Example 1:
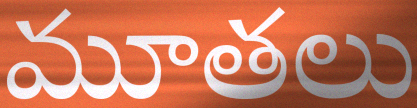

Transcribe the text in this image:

మూతలు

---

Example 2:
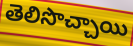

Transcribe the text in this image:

తెలిసొచ్చాయి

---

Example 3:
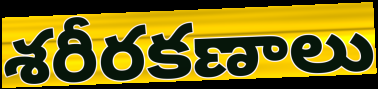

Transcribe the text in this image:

శరీరకణాలు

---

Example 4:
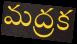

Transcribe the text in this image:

మద్రక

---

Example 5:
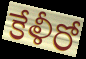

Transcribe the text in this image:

కేళీరో